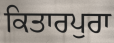
ਕਿਤਾਰਪੁਰਾ